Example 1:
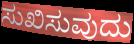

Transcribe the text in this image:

ಸುಖಿಸುವುದು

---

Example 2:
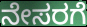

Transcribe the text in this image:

ನೇಸರಗೆ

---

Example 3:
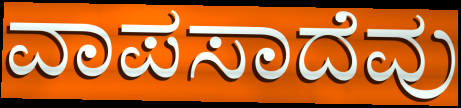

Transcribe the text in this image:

ವಾಪಸಾದೆವು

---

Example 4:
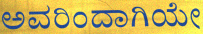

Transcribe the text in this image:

ಅವರಿಂದಾಗಿಯೇ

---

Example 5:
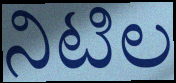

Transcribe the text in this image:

ನಿಟಿಲ